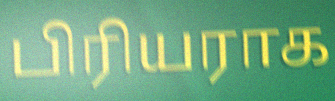
பிரியராக